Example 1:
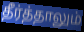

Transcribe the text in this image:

தீர்த்தாலும்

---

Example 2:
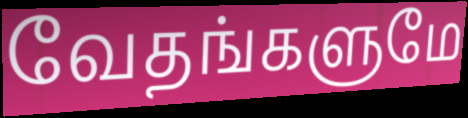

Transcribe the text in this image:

வேதங்களுமே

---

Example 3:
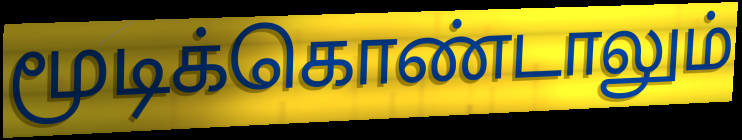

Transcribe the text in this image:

மூடிக்கொண்டாலும்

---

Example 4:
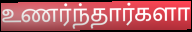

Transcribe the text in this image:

உணர்ந்தார்களா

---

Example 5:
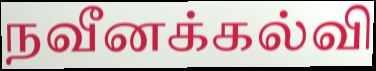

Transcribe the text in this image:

நவீனக்கல்வி